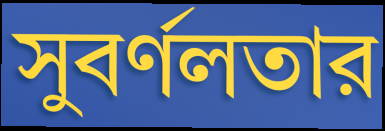
সুবর্ণলতার